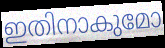
ഇതിനാകുമോ